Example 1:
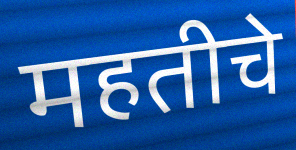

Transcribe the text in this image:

महतीचे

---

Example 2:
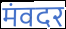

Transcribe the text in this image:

मंवदर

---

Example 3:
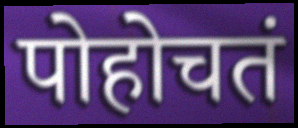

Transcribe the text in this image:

पोहोचतं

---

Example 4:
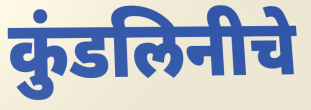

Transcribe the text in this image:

कुंडलिनीचे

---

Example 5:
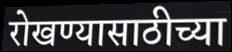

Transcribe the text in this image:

रोखण्यासाठीच्या